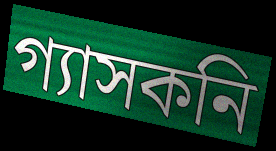
গ্যাসকনি